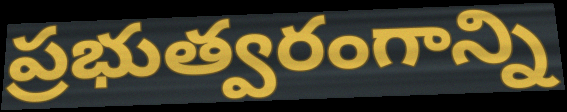
ప్రభుత్వరంగాన్ని